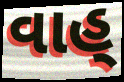
વાહ્